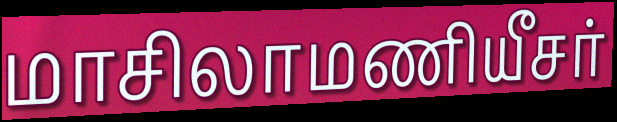
மாசிலாமணியீசர்